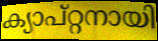
ക്യാപ്റ്റനായി